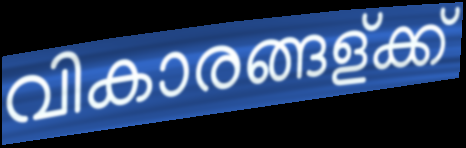
വികാരങ്ങള്ക്ക്